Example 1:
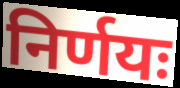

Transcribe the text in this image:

निर्णयः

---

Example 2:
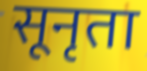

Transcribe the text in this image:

सूनृता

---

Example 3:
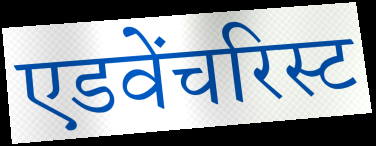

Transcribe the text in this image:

एडवेंचरिस्ट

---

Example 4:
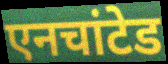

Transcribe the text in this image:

एनचांटेड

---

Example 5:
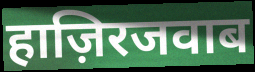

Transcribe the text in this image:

हाज़िरजवाब